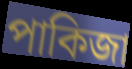
পাকিজা